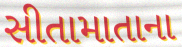
સીતામાતાના